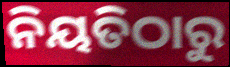
ନିୟତିଠାରୁ